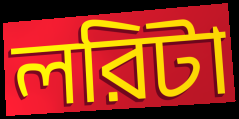
লরিটা